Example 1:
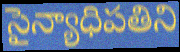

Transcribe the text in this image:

సైన్యాధిపతిని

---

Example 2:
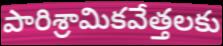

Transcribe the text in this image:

పారిశ్రామికవేత్తలకు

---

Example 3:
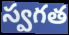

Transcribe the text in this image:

స్వగత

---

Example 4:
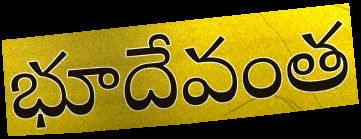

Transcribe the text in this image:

భూదేవంత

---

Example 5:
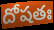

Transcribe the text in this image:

దోషతః